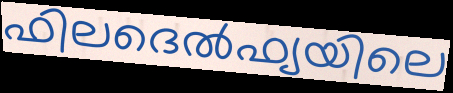
ഫിലദെൽഫ്യയിലെ